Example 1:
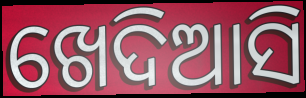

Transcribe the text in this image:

ଖେଦିଆସି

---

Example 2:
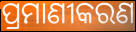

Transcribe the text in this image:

ପ୍ରମାଣୀକରଣ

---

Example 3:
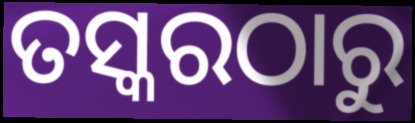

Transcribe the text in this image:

ତସ୍କରଠାରୁ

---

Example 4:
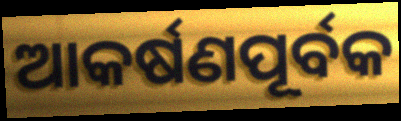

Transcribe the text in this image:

ଆକର୍ଷଣପୂର୍ବକ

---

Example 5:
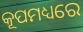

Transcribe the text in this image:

କୂପମଧ୍ୟରେ